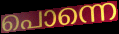
പൊന്നെ